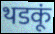
थडकूं